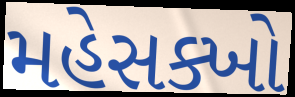
મહેસક્ખો